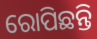
ରୋପିଛନ୍ତି